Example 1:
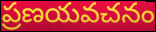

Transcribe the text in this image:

ప్రణయవచనం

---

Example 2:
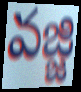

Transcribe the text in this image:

వజ్జి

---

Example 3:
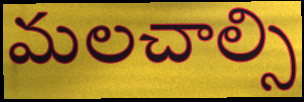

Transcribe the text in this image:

మలచాల్సి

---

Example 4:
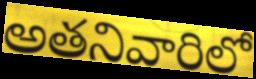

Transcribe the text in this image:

అతనివారిలో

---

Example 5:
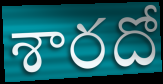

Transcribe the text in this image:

శారదో